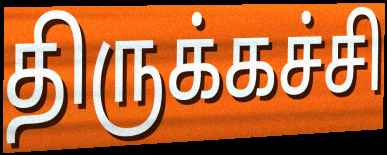
திருக்கச்சி